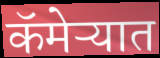
कॅमेऱ्यात